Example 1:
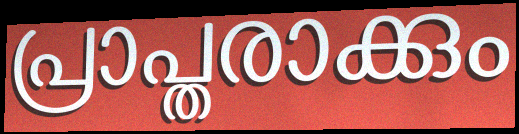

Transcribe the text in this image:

പ്രാപ്തരാക്കും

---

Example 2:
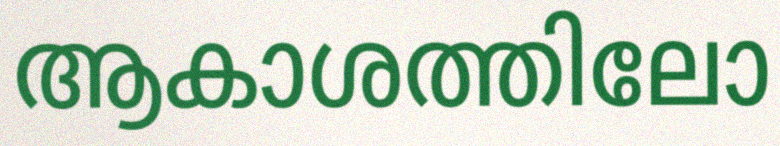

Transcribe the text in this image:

ആകാശത്തിലോ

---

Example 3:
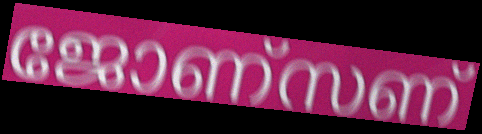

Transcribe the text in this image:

ജോണ്സണ്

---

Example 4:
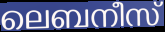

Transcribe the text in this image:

ലെബനീസ്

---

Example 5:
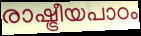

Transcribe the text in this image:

രാഷ്ട്രീയപാഠം